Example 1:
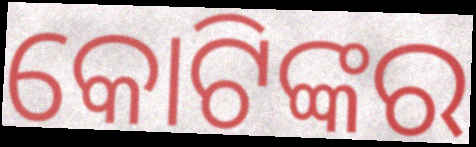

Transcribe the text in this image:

କୋଟିଙ୍କର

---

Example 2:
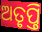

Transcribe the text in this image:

ଅତୃପ୍ତି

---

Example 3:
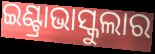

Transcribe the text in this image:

ଇଣ୍ଟ୍ରାଭାସ୍କୁଲାର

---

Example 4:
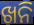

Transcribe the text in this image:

ଖନି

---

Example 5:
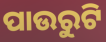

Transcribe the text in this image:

ପାଉରୁଟି